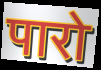
पारो